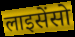
लाइसेंसो